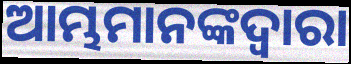
ଆମ୍ଭମାନଙ୍କଦ୍ୱାରା